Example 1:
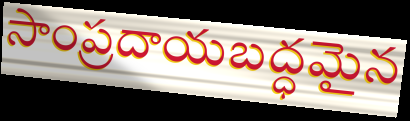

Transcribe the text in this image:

సాంప్రదాయబద్ధమైన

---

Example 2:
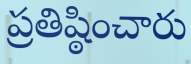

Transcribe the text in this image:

ప్రతిష్ఠించారు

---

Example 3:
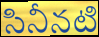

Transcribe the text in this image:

సినీనటి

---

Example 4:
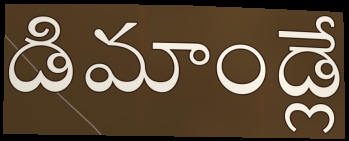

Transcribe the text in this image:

డిమాండ్లే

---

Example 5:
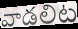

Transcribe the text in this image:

వాడలిట